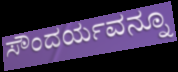
ಸೌಂದರ್ಯವನ್ನೂ